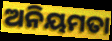
ଅନିୟମତା